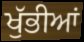
ਖੁੱਭੀਆਂ